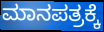
ಮಾನಪತ್ರಕ್ಕೆ